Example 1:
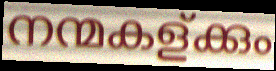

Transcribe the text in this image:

നന്മകള്ക്കും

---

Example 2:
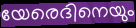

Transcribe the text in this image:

യേരെദിനെയും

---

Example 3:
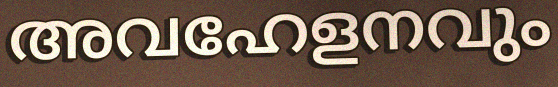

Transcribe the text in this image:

അവഹേളനവും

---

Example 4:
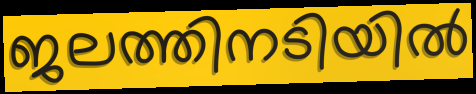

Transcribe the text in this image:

ജലത്തിനടിയിൽ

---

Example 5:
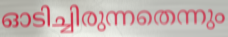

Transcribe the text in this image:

ഓടിച്ചിരുന്നതെന്നും